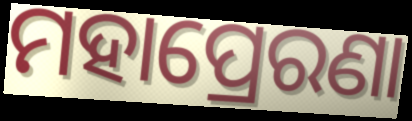
ମହାପ୍ରେରଣା